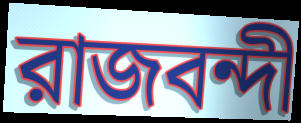
রাজবন্দী